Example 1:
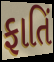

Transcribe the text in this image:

ફાતિં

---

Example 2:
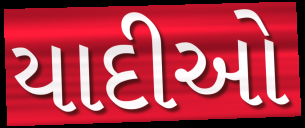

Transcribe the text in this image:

યાદીઓ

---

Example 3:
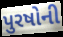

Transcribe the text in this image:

પુરષોની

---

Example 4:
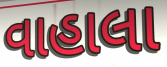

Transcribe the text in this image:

વાહાલા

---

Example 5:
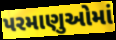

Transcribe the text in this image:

પરમાણુઓમાં